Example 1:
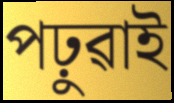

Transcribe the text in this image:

পঢ়ুৱাই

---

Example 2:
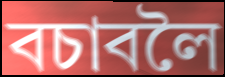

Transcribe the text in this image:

বচাবলৈ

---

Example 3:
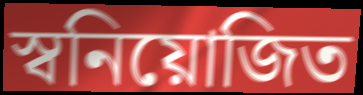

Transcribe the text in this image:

স্বনিয়োজিত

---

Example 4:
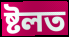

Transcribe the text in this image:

ষ্টলত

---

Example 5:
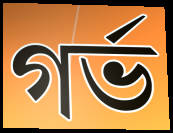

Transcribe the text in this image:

গৰ্ভ